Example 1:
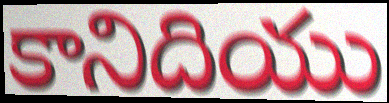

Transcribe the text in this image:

కానిదియు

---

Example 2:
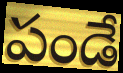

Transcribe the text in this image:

పండే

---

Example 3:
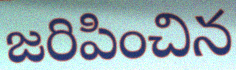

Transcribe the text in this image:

జరిపించిన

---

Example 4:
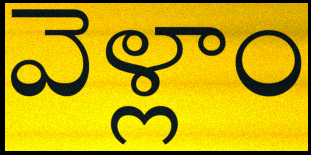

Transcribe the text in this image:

వెళ్లాం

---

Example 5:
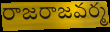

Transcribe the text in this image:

రాజరాజవర్మ